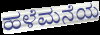
ಹಳೆಮನೆಯ